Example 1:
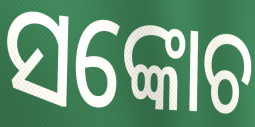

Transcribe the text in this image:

ସଙ୍କୋଚ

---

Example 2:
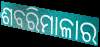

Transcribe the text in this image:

ଶବରିମାଳାର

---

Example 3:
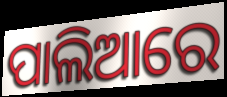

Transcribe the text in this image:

ପାଲିଆରେ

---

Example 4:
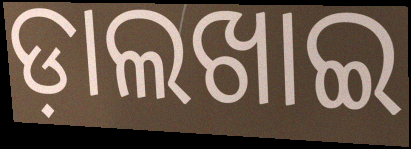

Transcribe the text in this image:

ଡ଼ାଲଖାଇ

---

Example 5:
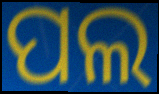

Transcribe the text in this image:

ପଲ